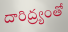
దారిద్ర్యంతో